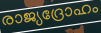
രാജ്യദ്രോഹം